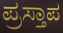
ಪ್ರಸ್ತಾಪ